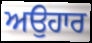
ਅਉਹਾਰ